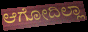
ಆಗೋದಿಲ್ಲಾ